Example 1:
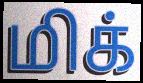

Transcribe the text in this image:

மிக்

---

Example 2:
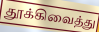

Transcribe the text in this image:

தூக்கிவைத்து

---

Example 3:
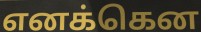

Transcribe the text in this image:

எனக்கென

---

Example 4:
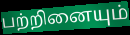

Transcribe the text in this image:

பற்றினையும்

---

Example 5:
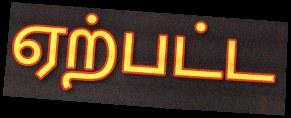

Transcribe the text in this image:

ஏற்பட்ட